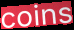
coins